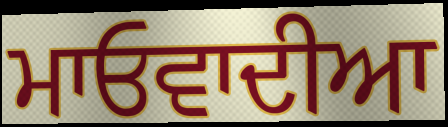
ਮਾਓਵਾਦੀਆ